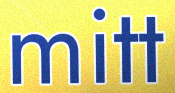
mitt